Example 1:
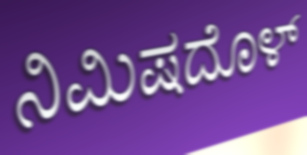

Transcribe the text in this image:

ನಿಮಿಷದೊಳ್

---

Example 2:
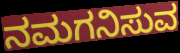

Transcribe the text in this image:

ನಮಗನಿಸುವ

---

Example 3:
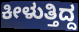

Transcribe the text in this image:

ಕೀಳುತ್ತಿದ್ದ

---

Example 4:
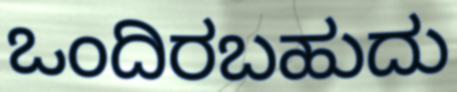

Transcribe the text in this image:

ಒಂದಿರಬಹುದು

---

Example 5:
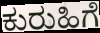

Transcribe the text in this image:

ಕುರುಹಿಗೆ